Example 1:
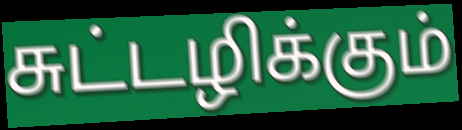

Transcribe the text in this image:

சுட்டழிக்கும்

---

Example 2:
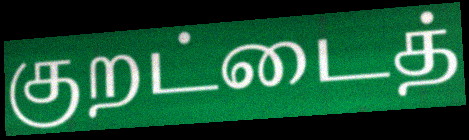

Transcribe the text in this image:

குறட்டைத்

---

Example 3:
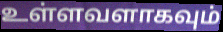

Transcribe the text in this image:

உள்ளவளாகவும்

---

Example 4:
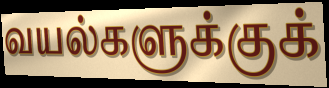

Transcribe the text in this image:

வயல்களுக்குக்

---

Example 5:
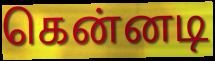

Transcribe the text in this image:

கென்னடி